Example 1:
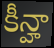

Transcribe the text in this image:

కీన్హా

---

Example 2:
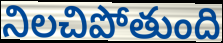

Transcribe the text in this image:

నిలచిపోతుంది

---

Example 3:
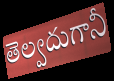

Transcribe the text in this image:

తెల్వదుగానీ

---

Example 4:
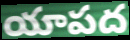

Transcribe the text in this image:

యాపద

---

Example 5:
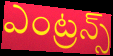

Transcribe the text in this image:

ఎంట్రన్స్